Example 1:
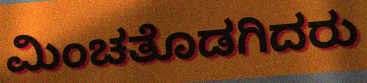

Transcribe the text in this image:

ಮಿಂಚತೊಡಗಿದರು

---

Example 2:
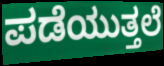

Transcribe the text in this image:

ಪಡೆಯುತ್ತಲೆ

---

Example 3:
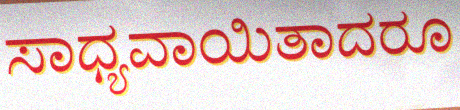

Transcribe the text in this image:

ಸಾಧ್ಯವಾಯಿತಾದರೂ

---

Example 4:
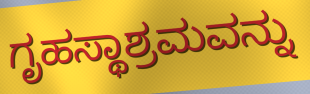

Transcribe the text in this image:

ಗೃಹಸ್ಥಾಶ್ರಮವನ್ನು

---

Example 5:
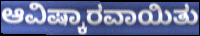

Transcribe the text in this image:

ಆವಿಷ್ಕಾರವಾಯಿತು